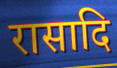
रासादि